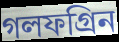
গলফগ্রিন